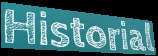
Historial